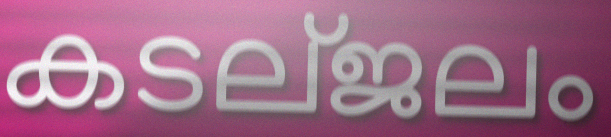
കടല്ജലം